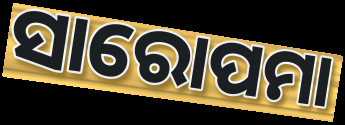
ସାରୋପମା